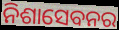
ନିଶାସେବନର